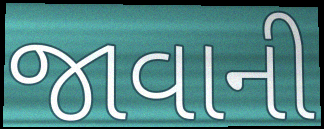
જાવાની